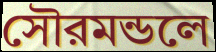
সৌরমন্ডলে